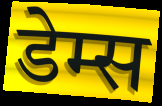
डेम्स